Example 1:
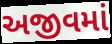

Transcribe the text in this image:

અજીવમાં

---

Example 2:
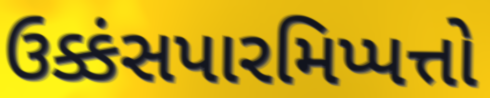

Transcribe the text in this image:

ઉક્કંસપારમિપ્પત્તો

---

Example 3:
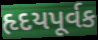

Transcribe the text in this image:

હૃદયપૂર્વક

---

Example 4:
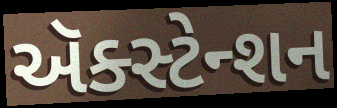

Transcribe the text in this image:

ઍક્સ્ટેન્શન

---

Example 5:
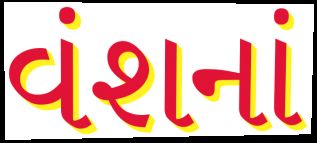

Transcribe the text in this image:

વંશનાં